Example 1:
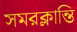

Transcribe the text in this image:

সমরক্লান্তি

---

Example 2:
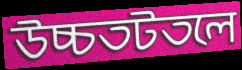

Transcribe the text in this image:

উচ্চতটতলে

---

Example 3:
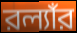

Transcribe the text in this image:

রল্যাঁর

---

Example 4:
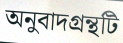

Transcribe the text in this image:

অনুবাদগ্রন্থটি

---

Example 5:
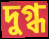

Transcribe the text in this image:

দুগ্ধ